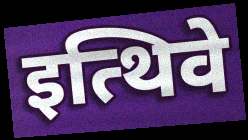
इत्थिवे